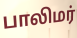
பாலிமர்